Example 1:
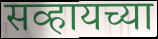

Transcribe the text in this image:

सव्हायच्या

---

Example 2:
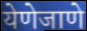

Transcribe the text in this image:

येणेजाणे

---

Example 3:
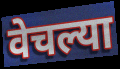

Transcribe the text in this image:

वेचल्या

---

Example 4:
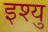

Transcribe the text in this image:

इश्यु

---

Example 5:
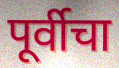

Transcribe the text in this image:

पूर्वीचा